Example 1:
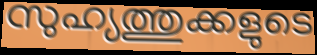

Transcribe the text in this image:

സുഹ്യത്തുക്കളുടെ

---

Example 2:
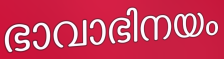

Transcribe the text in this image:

ഭാവാഭിനയം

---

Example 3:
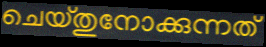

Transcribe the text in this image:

ചെയ്തുനോക്കുന്നത്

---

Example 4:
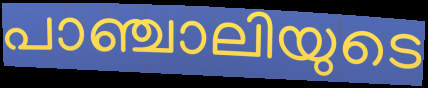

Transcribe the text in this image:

പാഞ്ചാലിയുടെ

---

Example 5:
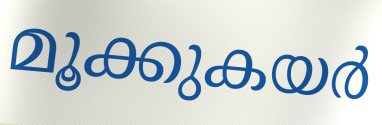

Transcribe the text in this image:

മൂക്കുകയർ